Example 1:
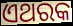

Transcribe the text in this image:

ଏଥରକ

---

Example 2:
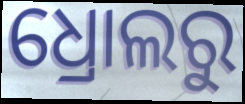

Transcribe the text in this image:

ଧ୍ରୋଲରୁ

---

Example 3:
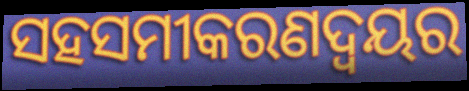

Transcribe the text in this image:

ସହସମୀକରଣଦ୍ୱୟର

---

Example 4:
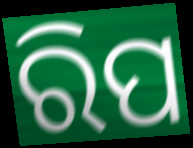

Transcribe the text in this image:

ରିପ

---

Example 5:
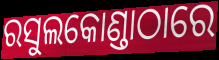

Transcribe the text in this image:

ରସୁଲକୋଣ୍ଡାଠାରେ